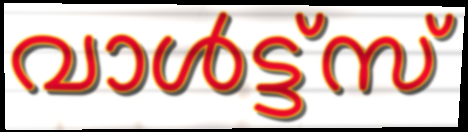
വാൾട്ട്സ്